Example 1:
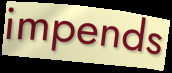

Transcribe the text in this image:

impends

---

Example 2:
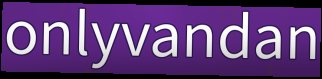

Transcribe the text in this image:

onlyvandan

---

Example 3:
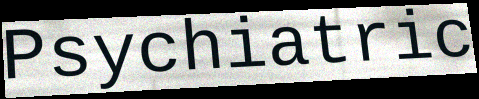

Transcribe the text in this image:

Psychiatric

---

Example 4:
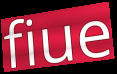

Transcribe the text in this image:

fiue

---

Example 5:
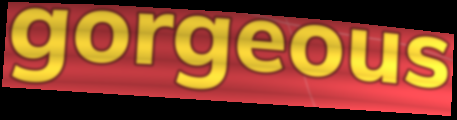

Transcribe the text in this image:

gorgeous